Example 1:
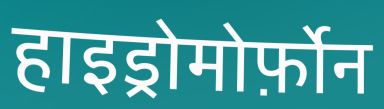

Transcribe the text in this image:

हाइड्रोमोर्फ़ोन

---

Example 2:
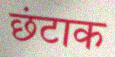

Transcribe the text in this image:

छंटाक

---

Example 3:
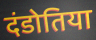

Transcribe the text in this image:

दंडोतिया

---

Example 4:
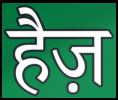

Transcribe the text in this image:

हैज़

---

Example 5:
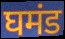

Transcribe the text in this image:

घमंड